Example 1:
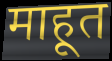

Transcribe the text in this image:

माहूत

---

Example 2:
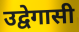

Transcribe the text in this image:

उद्वेगासी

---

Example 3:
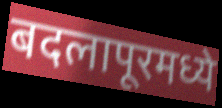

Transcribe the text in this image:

बदलापूरमध्ये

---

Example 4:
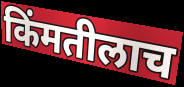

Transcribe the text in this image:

किंमतीलाच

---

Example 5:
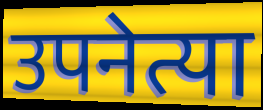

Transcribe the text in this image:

उपनेत्या